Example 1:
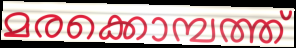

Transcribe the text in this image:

മരക്കൊമ്പത്ത്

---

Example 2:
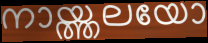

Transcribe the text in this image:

നായ്ത്തലയോ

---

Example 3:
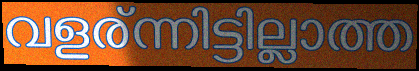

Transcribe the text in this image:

വളര്ന്നിട്ടില്ലാത്ത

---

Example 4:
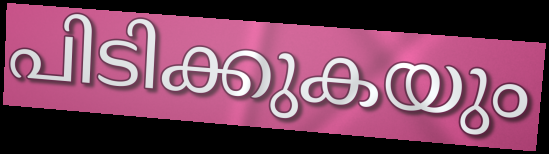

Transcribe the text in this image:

പിടിക്കുകയും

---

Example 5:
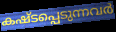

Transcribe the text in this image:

കഷ്ടപ്പെടുന്നവർ